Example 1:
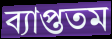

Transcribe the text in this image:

ব্যাপ্ততম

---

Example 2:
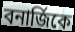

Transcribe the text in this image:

বনার্জিকে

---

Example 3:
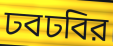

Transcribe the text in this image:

ঢবঢবির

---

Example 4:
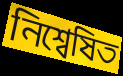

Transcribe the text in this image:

নিশ্বেষিত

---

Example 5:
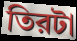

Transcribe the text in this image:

তিরটা